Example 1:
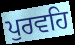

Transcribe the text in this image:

ਪੁਰਵਹਿ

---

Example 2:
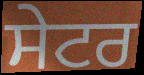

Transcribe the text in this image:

ਸੇਟਰ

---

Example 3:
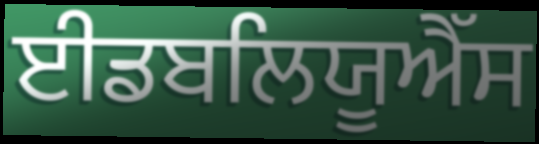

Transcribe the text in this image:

ਈਡਬਲਿਯੂਐੱਸ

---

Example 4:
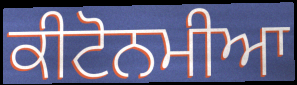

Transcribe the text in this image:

ਕੀਟੋਨਮੀਆ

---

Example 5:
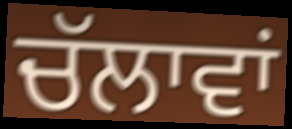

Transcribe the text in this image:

ਚੱਲਾਵਾਂ